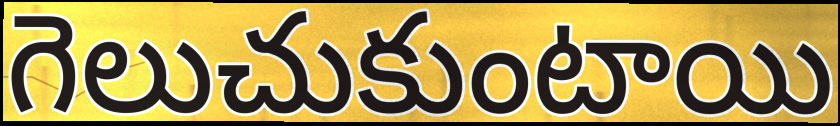
గెలుచుకుంటాయి